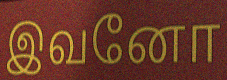
இவனோ